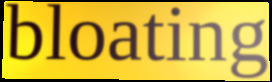
bloating